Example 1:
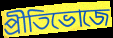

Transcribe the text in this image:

প্রীতিভোজে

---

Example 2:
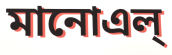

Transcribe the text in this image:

মানোএল্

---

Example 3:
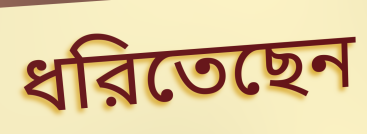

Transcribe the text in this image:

ধরিতেছেন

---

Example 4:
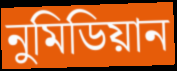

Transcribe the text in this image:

নুমিডিয়ান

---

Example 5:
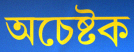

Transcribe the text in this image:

অচেষ্টক